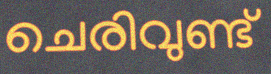
ചെരിവുണ്ട്